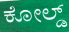
ಕೋಲ್ಡ್